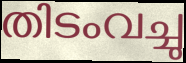
തിടംവച്ചു